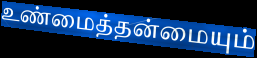
உண்மைத்தன்மையும்